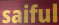
saiful